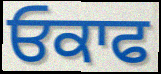
ਓਕਾਫ